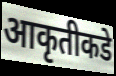
आकृतीकडे